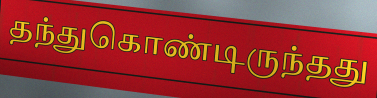
தந்துகொண்டிருந்தது